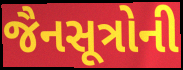
જૈનસૂત્રોની